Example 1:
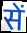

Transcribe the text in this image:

सें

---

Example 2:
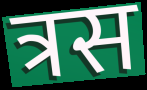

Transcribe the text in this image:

त्रस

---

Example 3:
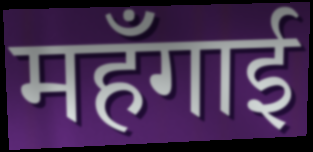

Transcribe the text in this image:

महँगाई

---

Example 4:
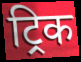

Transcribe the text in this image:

ट्रिक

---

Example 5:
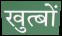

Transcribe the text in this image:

खुत्बों